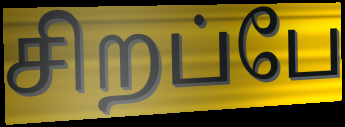
சிறப்பே